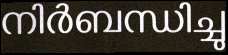
നിർബന്ധിച്ചു